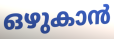
ഒഴുകാൻ